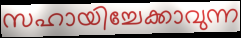
സഹായിച്ചേക്കാവുന്ന